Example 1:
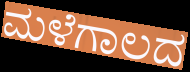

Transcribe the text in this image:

ಮಳೆಗಾಲದ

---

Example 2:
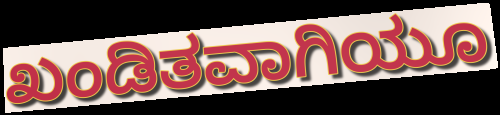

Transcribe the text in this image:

ಖಂಡಿತವಾಗಿಯೂ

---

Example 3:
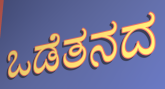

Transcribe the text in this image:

ಒಡೆತನದ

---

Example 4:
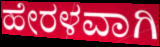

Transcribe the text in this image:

ಹೇರಳವಾಗಿ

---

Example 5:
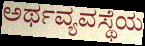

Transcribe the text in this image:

ಅರ್ಥವ್ಯವಸ್ಥೆಯ